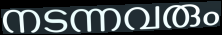
നടന്നവരും